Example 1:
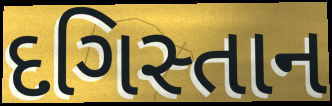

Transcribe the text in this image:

દગિસ્તાન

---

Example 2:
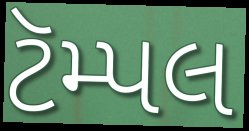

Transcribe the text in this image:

ટૅમ્પલ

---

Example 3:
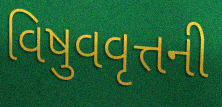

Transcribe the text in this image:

વિષુવવૃત્તની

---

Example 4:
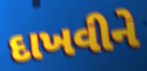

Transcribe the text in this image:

દાખવીને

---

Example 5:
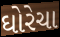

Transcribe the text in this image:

ઘોરેચા